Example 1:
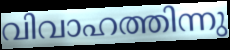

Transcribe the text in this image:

വിവാഹത്തിന്നു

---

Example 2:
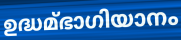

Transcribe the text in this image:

ഉദ്ധമ്ഭാഗിയാനം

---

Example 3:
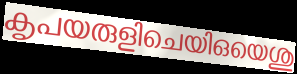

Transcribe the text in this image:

കൃപയരുളിചെയിഒയെശു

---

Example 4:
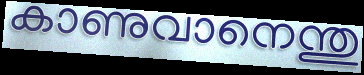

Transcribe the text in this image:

കാണുവാനെന്തു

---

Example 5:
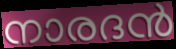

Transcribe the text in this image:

നാരദൻ